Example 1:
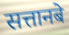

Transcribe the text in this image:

सत्तानबे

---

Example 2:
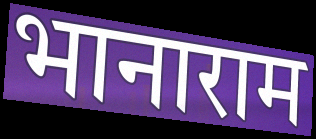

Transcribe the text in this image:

भानाराम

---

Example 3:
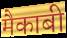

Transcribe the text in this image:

मैकाबी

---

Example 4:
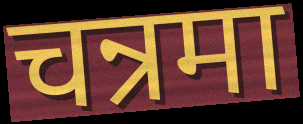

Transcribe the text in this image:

चन्रमा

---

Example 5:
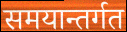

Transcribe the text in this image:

समयान्तर्गत